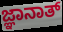
ಜ್ಞಾನಾತ್